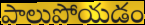
పాలుపోయడం